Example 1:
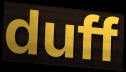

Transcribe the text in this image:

duff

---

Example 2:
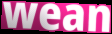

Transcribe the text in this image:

wean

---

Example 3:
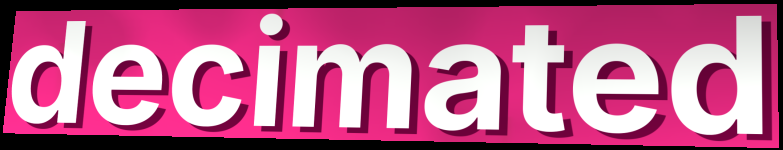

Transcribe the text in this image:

decimated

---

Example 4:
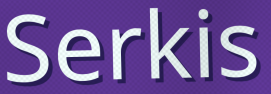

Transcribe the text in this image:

Serkis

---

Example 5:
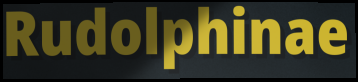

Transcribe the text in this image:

Rudolphinae